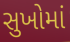
સુખોમાં